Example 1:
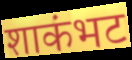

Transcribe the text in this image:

शाकंभट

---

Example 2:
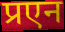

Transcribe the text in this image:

प्रएन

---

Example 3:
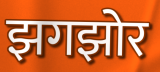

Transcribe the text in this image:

झगझोर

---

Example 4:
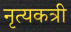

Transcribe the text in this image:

नृत्यकत्री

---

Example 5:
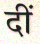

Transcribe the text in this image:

दीं